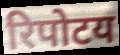
रिपोटय